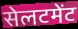
सेलटमेंट